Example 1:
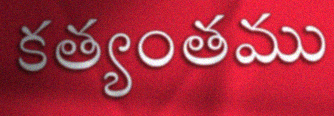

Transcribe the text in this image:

కత్యంతము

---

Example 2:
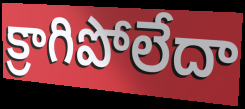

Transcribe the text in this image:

క్రాగిపోలేదా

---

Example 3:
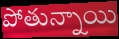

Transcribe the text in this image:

పోతున్నాయి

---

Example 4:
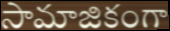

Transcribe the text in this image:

సామాజికంగా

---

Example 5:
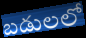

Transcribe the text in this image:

బడులలో